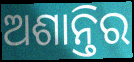
ଅଶାନ୍ତିର